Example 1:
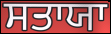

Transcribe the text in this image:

ਸਤਾਯਾ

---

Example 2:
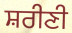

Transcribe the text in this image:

ਸ਼ਰੀਣੀ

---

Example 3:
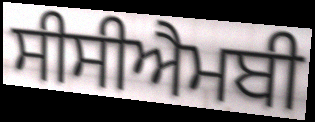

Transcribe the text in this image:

ਸੀਸੀਐਮਬੀ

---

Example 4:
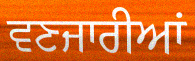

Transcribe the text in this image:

ਵਣਜਾਰੀਆਂ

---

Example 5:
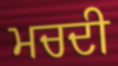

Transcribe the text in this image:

ਮਚਦੀ